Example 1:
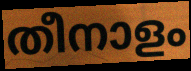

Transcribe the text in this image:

തീനാളം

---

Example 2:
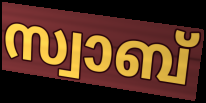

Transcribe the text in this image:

സ്വാബ്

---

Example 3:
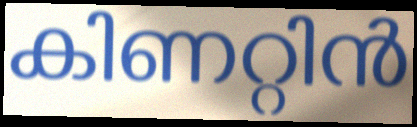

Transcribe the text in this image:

കിണറ്റിൻ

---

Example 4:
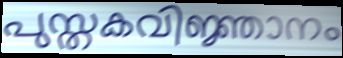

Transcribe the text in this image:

പുസ്തകവിജ്ഞാനം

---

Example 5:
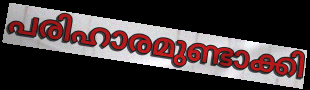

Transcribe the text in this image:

പരിഹാരമുണ്ടാക്കി